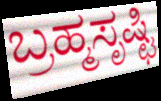
ಬ್ರಹ್ಮಸೃಷ್ಟಿ